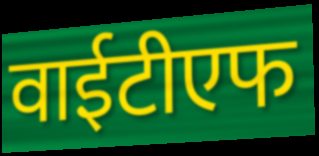
वाईटीएफ